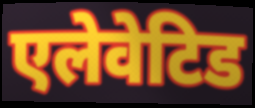
एलेवेटिड